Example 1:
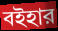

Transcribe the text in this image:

বইহার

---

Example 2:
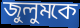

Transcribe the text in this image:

জুলুমকে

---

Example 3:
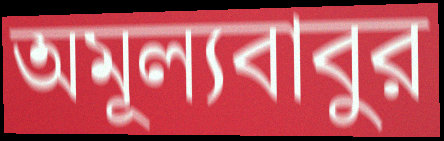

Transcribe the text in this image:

অমূল্যবাবুর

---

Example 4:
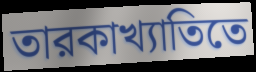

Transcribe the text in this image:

তারকাখ্যাতিতে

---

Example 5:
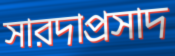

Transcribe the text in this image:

সারদাপ্রসাদ